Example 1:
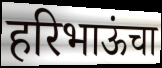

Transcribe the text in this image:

हरिभाऊंचा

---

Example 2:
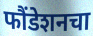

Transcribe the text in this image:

फौंडेशनचा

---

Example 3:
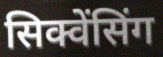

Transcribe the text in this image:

सिक्वेंसिंग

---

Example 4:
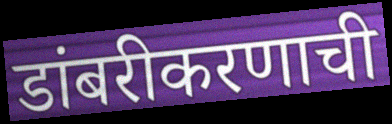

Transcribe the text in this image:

डांबरीकरणाची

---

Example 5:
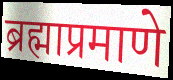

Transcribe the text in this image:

ब्रह्माप्रमाणे